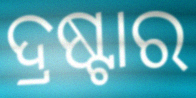
ଦ୍ରଷ୍ଟାର